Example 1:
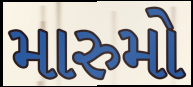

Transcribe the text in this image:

મારુમો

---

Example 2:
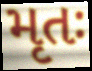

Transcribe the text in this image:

મૃતઃ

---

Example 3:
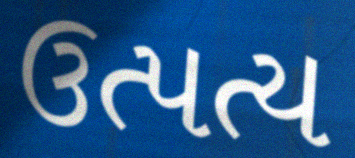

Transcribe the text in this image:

ઉત્પત્ય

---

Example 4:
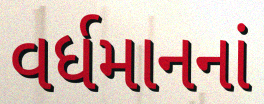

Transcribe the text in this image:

વર્ધમાનનાં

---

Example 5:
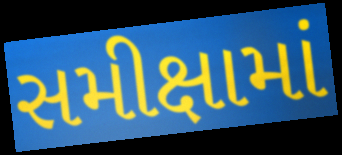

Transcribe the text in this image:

સમીક્ષામાં